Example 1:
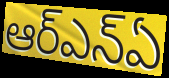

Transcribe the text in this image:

ఆర్ఎన్ఏ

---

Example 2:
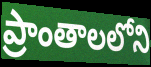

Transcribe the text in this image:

ప్రాంతాలలోని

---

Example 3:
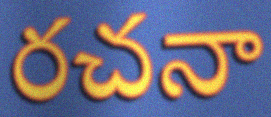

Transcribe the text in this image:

రచనా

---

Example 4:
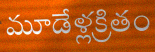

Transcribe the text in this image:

మూడేళ్లక్రితం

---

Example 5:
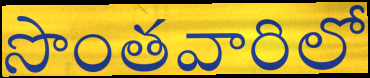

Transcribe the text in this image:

సొంతవారిలో